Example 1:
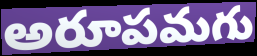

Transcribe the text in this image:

అరూపమగు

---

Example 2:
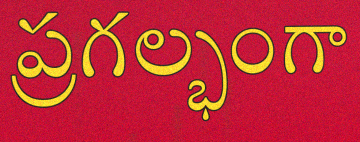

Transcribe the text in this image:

ప్రగల్భంగా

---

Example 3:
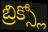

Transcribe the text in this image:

బ్రిక్స్లో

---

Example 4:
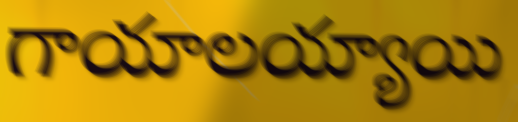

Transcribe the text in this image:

గాయాలయ్యాయి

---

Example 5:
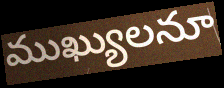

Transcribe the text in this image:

ముఖ్యులనూ